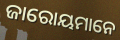
ଜାରୋୟମାନେ